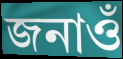
জনাওঁ